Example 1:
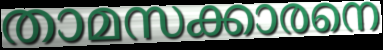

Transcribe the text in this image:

താമസക്കാരനെ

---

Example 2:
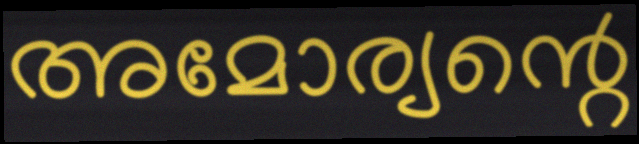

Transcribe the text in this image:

അമോര്യന്റെ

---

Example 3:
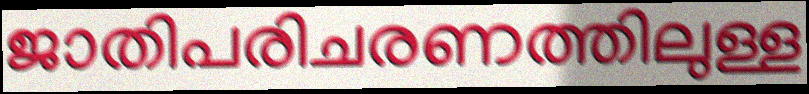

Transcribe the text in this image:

ജാതിപരിചരണത്തിലുള്ള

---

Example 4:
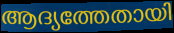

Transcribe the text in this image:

ആദ്യത്തേതായി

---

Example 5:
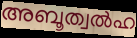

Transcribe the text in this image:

അബൂത്വൽഹ